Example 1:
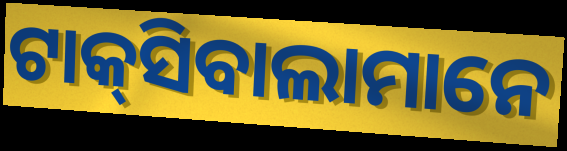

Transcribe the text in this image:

ଟାକ୍‌ସିବାଲାମାନେ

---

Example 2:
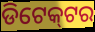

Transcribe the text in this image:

ଡିଟେକ୍‌ଟର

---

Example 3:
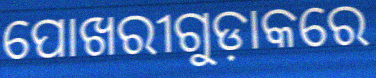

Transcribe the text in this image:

ପୋଖରୀଗୁଡ଼ାକରେ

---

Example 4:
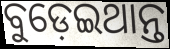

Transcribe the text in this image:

ବୁଡ଼େଇଥାନ୍ତ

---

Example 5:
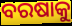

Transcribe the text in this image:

ବରଷାକୁ